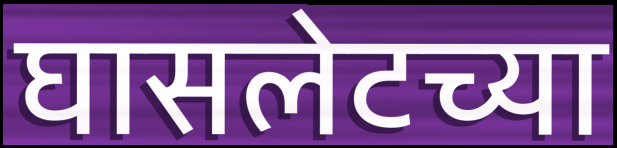
घासलेटच्या